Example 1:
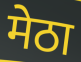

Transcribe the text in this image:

मेठा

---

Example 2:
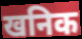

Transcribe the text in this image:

खनिक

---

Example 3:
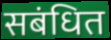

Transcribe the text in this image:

सबंधित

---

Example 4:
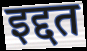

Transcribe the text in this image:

इद्दत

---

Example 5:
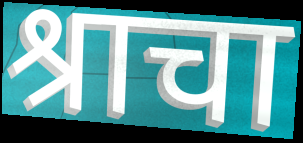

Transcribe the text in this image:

श्राचा